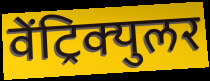
वेंट्रिक्युलर